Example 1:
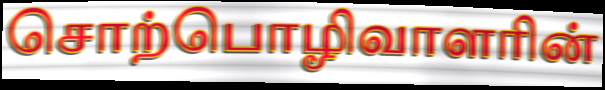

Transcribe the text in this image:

சொற்பொழிவாளரின்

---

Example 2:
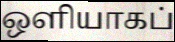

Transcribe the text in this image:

ஒளியாகப்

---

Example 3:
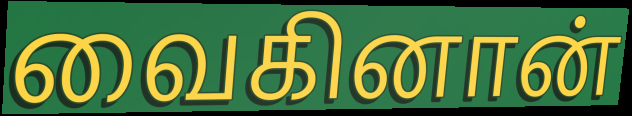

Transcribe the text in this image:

வைகினான்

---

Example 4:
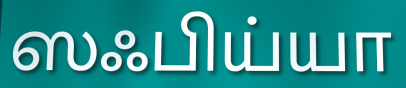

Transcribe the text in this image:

ஸஃபிய்யா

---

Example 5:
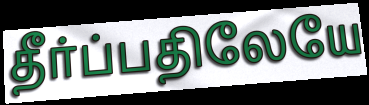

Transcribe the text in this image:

தீர்ப்பதிலேயே